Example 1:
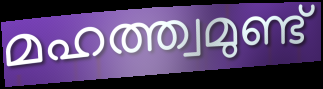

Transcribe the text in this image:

മഹത്ത്വമുണ്ട്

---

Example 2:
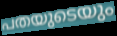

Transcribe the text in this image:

പതയുടെയും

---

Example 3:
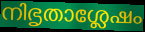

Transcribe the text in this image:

നിഭൃതാശ്ലേഷം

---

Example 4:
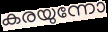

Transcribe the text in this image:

കരയുന്നോ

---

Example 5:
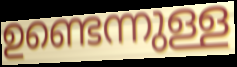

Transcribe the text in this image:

ഉണ്ടെന്നുള്ള